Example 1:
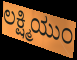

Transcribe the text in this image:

ಲಕ್ಷ್ಮಿಯುಂ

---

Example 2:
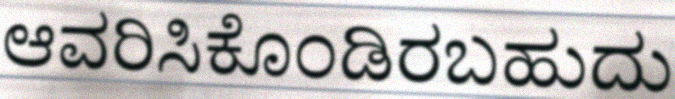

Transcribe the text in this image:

ಆವರಿಸಿಕೊಂಡಿರಬಹುದು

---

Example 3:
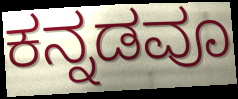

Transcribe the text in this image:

ಕನ್ನಡವೂ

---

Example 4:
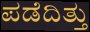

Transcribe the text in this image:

ಪಡೆದಿತ್ತು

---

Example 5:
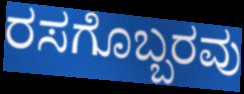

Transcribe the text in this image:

ರಸಗೊಬ್ಬರವು